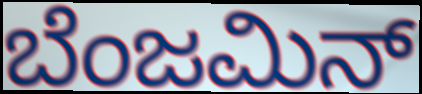
ಬೆಂಜಮಿನ್